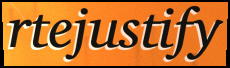
rtejustify